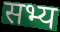
सभ्य